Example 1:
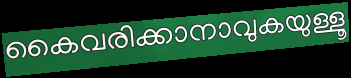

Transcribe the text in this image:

കൈവരിക്കാനാവുകയുള്ളൂ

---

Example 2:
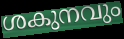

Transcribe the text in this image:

ശകുനവും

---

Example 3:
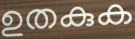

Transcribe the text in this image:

ഉതകുക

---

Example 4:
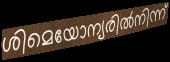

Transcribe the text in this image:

ശിമെയോന്യരിൽനിന്ന്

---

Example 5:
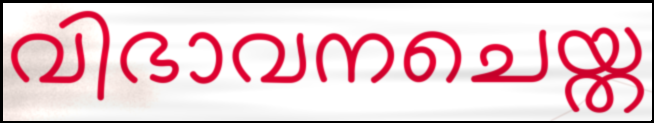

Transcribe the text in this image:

വിഭാവനചെയ്ത